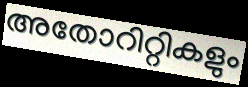
അതോറിറ്റികളും